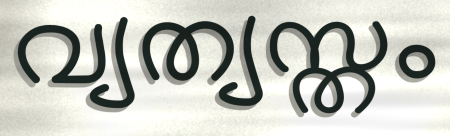
വ്യത്യസ്തം